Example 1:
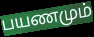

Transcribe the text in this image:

பயணமும்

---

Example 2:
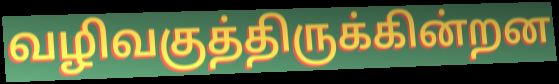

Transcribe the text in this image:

வழிவகுத்திருக்கின்றன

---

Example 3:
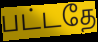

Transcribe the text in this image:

பட்டதே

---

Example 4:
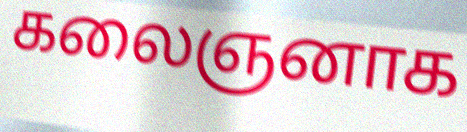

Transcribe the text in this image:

கலைஞனாக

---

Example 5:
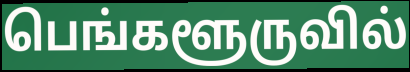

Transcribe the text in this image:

பெங்களூருவில்